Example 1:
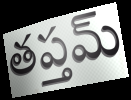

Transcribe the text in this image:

తప్తమ్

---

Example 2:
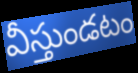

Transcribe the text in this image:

వీస్తుండటం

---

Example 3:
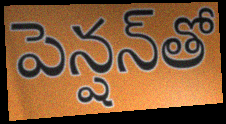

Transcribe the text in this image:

పెన్షన్‌తో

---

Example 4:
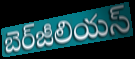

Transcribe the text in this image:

బెర్‌జీలియస్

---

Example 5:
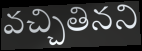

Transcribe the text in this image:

వచ్చితినని